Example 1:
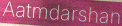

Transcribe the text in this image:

Aatmdarshan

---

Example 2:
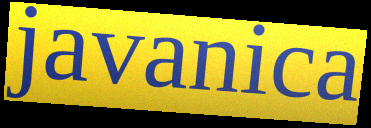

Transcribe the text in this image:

javanica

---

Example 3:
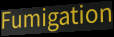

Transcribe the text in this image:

Fumigation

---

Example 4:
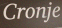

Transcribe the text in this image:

Cronje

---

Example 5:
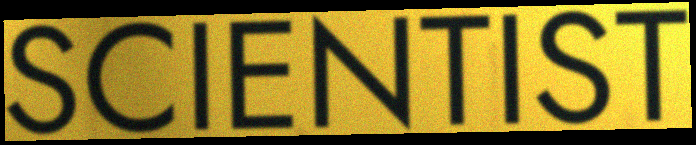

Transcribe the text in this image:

SCIENTIST